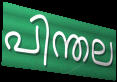
പിന്തല